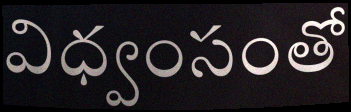
విధ్వంసంతో